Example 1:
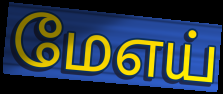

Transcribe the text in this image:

மேஎய்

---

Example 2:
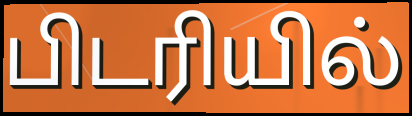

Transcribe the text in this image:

பிடரியில்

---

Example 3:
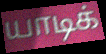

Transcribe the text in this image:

யாடிக்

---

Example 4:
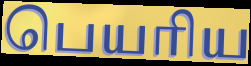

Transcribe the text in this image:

பெயரிய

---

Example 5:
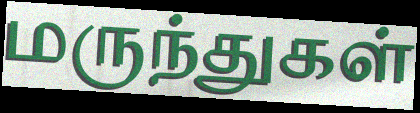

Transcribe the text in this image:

மருந்துகள்